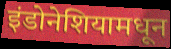
इंडोनेशियामधून